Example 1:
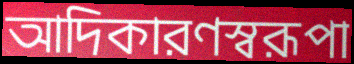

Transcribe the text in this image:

আদিকারণস্বরূপা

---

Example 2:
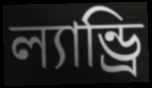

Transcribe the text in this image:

ল্যান্ড্রি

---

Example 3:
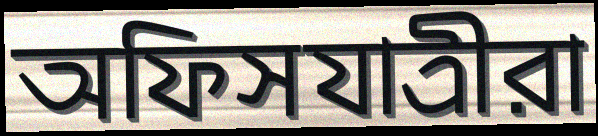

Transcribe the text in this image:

অফিসযাত্রীরা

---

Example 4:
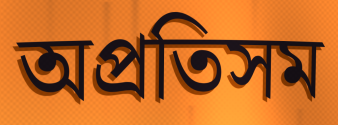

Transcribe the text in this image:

অপ্রতিসম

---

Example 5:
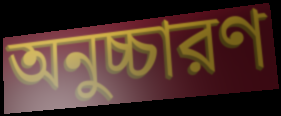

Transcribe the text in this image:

অনুচ্চারণ